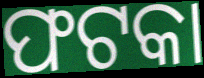
ଫଟକା